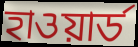
হাওয়ার্ড